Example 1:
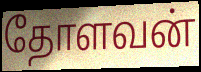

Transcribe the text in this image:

தோளவன்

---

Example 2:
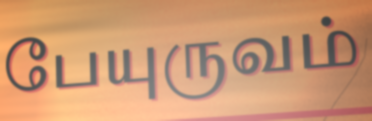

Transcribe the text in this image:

பேயுருவம்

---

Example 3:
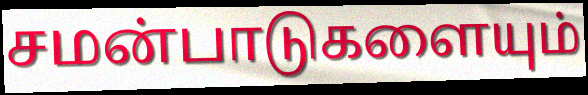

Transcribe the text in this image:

சமன்பாடுகளையும்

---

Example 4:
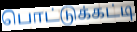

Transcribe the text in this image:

பொட்டுக்கட்டி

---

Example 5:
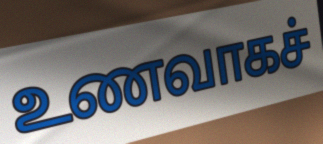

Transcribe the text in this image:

உணவாகச்